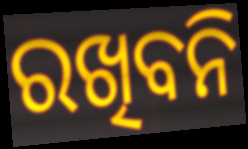
ରଖିବନି